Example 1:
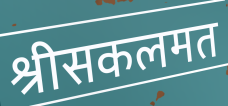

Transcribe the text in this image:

श्रीसकलमत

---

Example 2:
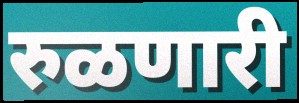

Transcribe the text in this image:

रुळणारी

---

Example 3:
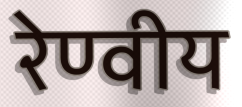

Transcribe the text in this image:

रेण्वीय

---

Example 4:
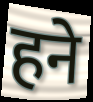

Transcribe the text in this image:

हने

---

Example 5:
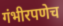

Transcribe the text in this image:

गंभीरपणेच